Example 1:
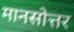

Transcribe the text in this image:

मानसोत्तर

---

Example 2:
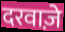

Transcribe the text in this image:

दरवाज़े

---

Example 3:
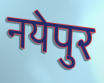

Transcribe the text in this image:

नयेपुर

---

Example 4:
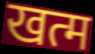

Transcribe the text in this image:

खत्‍म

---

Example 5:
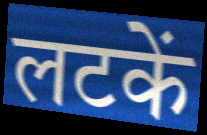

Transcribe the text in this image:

लटकें